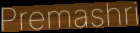
Premashri